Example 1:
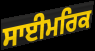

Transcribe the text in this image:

ਸਾਈਮਰਿਕ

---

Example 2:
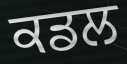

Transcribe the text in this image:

ਕਡਲ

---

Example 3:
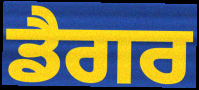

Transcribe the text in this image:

ਡੈਗਰ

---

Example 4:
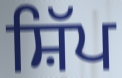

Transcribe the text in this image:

ਸ਼ਿੱਪ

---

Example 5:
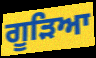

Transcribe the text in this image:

ਗੂੜਿਆ